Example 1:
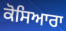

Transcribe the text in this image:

ਕੋਸਿਆਰਾ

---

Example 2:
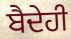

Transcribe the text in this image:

ਬੈਦੇਹੀ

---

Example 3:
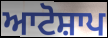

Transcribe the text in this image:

ਆਟੋਸ਼ਾਪ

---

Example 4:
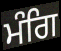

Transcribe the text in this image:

ਮੰਗਿ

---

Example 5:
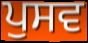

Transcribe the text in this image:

ਪੁਸਵ